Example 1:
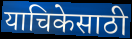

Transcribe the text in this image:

याचिकेसाठी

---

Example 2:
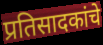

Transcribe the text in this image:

प्रतिसादकांचे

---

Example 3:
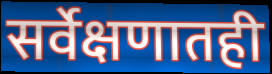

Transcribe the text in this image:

सर्वेक्षणातही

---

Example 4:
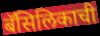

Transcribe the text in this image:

बॅसिलिकाची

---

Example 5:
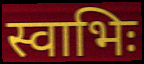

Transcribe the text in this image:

स्वाभिः